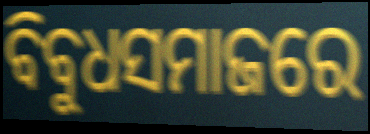
ବିବୁଧସମାଜରେ